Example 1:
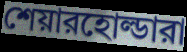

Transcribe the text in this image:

শেয়ারহোল্ডারা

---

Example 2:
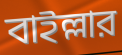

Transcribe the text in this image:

বাইল্লার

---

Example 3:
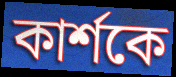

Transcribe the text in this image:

কার্শকে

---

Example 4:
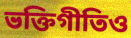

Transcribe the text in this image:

ভক্তিগীতিও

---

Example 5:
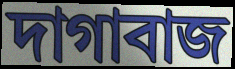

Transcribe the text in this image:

দাগাবাজ